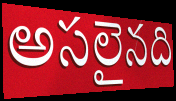
అసలైనది